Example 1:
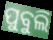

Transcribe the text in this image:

ପୁବୁଲି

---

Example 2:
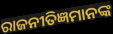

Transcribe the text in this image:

ରାଜନୀତିଜ୍ଞମାନଙ୍କ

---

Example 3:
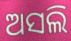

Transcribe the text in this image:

ଅସଲି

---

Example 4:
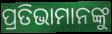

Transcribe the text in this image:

ପ୍ରତିଭାମାନଙ୍କୁ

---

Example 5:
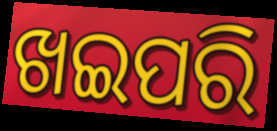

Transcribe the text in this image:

ଖଇପରି